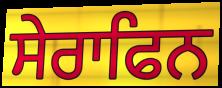
ਸੇਰਾਫਿਨ